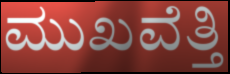
ಮುಖವೆತ್ತಿ